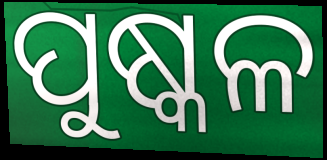
ପୁଷ୍କଳ